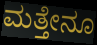
ಮತ್ತೇನೂ